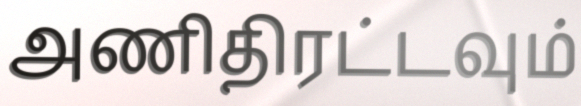
அணிதிரட்டவும்